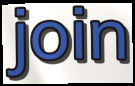
join